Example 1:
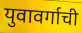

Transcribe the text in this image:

युवावर्गाची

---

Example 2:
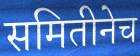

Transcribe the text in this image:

समितीनेच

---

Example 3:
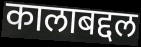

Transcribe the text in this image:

कालाबद्दल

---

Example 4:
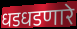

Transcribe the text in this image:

धडधडणारे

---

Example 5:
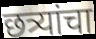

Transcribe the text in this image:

छत्र्यांचा